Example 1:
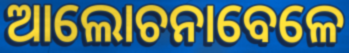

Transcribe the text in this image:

ଆଲୋଚନାବେଳେ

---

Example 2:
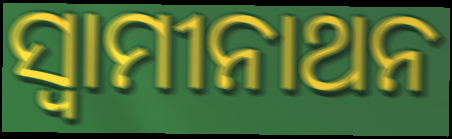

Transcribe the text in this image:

ସ୍ୱାମୀନାଥନ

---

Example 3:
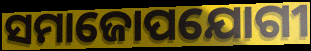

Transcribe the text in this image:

ସମାଜୋପଯୋଗୀ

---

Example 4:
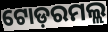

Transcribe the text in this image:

ଟୋଡ଼ରମଲ୍ଲ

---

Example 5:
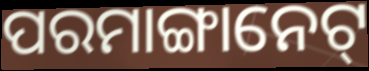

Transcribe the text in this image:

ପରମାଙ୍ଗାନେଟ୍